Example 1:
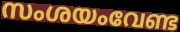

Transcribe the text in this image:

സംശയംവേണ്ട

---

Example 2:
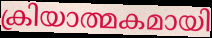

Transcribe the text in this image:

ക്രിയാത്മകമായി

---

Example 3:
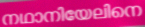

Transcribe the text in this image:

നഥാനിയേലിനെ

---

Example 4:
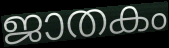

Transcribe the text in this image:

ജാതകം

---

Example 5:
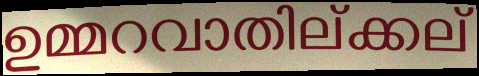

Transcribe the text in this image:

ഉമ്മറവാതില്ക്കല്